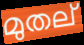
മുതല്